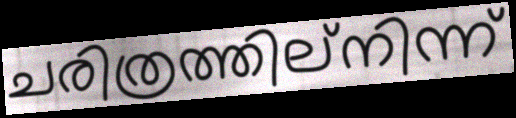
ചരിത്രത്തില്നിന്ന്